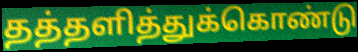
தத்தளித்துக்கொண்டு